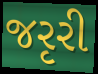
જરૃરી